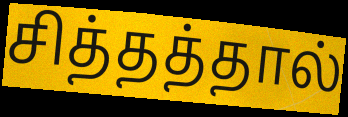
சித்தத்தால்